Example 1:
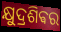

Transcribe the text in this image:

କ୍ଷୁଦ୍ରଶିଵର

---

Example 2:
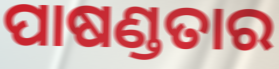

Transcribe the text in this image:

ପାଷଣ୍ଡତାର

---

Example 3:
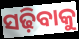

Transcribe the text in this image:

ସଢ଼ିବାକୁ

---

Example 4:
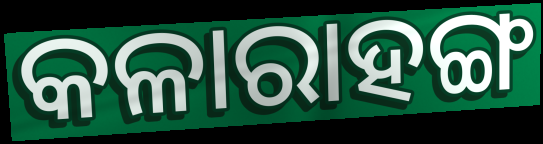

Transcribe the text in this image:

କଳାରାହଙ୍ଗ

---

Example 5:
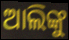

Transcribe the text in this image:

ଆଲିଙ୍କୁ